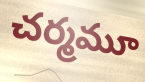
చర్మమూ